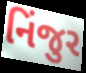
નિંજુર